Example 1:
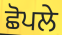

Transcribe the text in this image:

ਛੋਪਲੇ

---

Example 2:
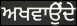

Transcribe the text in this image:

ਅਖਵਾਉੇਂਦੇ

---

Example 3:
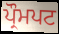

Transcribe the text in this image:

ਪ੍ਰੌਮਪਟ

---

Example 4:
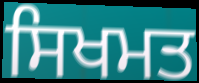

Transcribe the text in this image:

ਸਿਖਮਤ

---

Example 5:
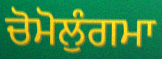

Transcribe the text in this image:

ਚੋਮੋਲੁੰਗਮਾ